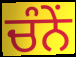
ਚੰਨੇਂ